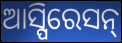
ଆସ୍ପିରେସନ୍